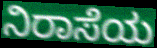
ನಿರಾಸೆಯ